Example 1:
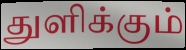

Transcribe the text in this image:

துளிக்கும்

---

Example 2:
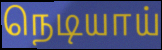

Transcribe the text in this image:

நெடியாய்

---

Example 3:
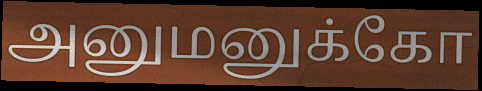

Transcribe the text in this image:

அனுமனுக்கோ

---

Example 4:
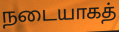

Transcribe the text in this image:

நடையாகத்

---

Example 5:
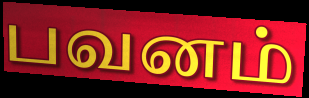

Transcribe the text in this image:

பவனம்